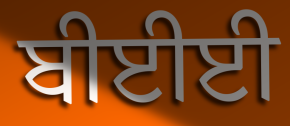
ਬੀਈਈ